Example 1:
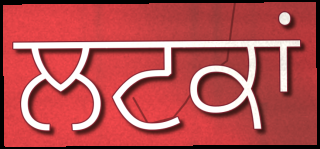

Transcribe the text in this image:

ਲਟਕਾਂ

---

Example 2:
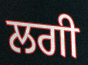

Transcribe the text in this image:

ਲਗੀ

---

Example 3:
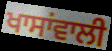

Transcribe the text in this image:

ਖਾਸਾਂਵਾਲੀ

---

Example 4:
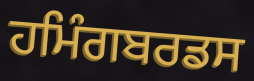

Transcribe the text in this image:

ਹਮਿੰਗਬਰਡਸ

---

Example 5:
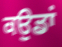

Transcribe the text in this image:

ਕਉਡਾਂ